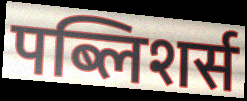
पब्लिशर्स